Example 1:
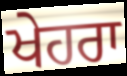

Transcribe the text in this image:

ਖੇਹਰਾ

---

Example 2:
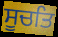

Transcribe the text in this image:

ਸੂਚਤਿ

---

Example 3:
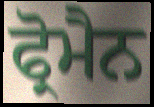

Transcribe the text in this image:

ਫ੍ਰੋਮੈਨ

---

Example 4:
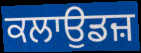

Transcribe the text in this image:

ਕਲਾਉਡਜ਼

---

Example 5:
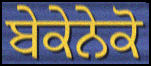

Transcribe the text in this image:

ਬੇਕੇਨੇਕੋ